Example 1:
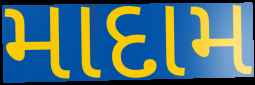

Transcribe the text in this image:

માદામ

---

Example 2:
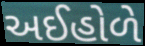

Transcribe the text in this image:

અઈહોળે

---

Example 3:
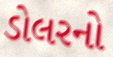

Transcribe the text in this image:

ડોલરનો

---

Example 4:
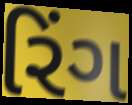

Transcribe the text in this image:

રિંગ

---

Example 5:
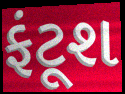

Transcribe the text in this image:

ફંટૂશ